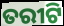
ତରୀଟି